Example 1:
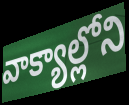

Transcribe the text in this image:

వాక్యాల్లోని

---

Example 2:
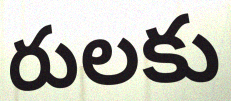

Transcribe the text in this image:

రులకు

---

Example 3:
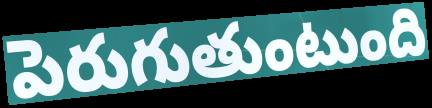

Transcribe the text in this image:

పెరుగుతుంటుంది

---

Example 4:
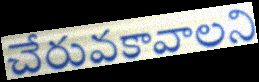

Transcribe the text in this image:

చేరువకావాలని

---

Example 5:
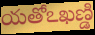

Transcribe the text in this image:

యతోఽఖణ్డి